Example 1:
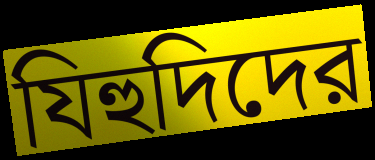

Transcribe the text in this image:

যিহুদিদের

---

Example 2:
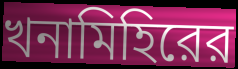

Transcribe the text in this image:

খনামিহিরের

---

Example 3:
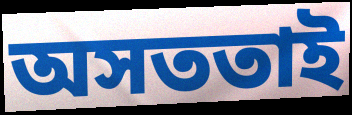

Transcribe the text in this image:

অসততাই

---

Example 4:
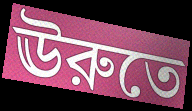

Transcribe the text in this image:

ঊরুতে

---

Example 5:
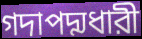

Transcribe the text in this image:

গদাপদ্মধারী